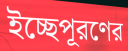
ইচ্ছেপূরণের